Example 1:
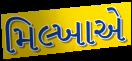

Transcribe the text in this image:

મિલ્ખાએ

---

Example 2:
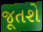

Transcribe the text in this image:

જૂતશે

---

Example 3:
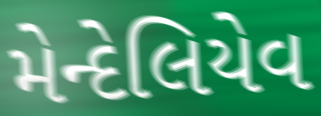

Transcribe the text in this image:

મેન્દેલિયેવ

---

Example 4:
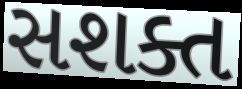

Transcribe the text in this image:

સશક્ત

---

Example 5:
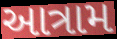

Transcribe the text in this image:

આત્રામ